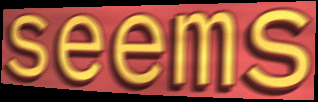
seems